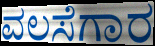
ವಲಸೆಗಾರ